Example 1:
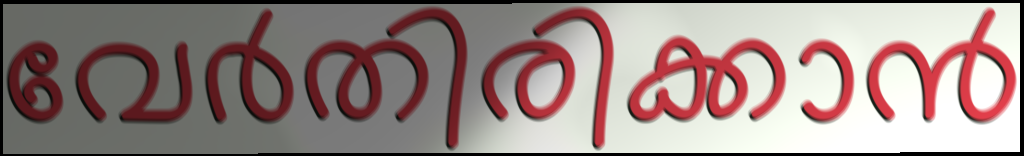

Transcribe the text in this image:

വേർതിരിക്കാൻ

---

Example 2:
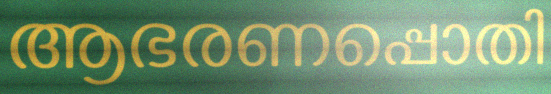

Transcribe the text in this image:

ആഭരണപ്പൊതി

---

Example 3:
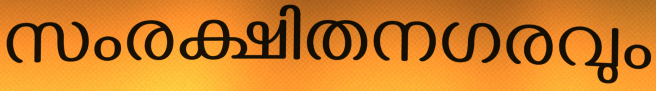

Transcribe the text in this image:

സംരക്ഷിതനഗരവും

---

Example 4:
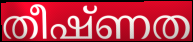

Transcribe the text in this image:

തീഷ്ണത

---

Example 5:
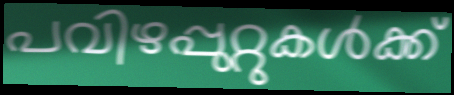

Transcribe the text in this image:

പവിഴപ്പുറ്റുകൾക്ക്